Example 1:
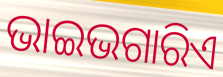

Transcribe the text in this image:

ଭାଇଭଗାରିଏ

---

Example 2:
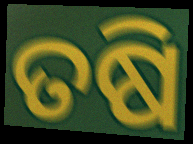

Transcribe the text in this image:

ତଷି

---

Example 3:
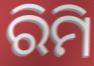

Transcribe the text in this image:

ରିମି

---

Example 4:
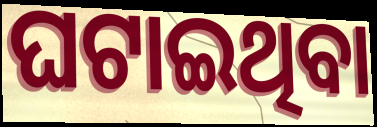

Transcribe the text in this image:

ଘଟାଇଥିବା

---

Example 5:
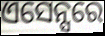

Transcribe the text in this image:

ଏସେନ୍ସରେ